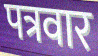
पत्रवार